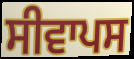
ਸੀਵਾਪਸ